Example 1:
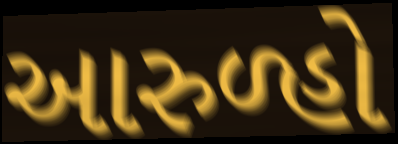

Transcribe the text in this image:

આરુળ્હો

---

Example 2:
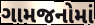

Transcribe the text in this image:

ગામજનોમાં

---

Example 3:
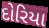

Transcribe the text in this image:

દોરિયા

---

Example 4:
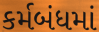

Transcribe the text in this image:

કર્મબંધમાં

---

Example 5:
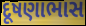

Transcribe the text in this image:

દૂષણાભાસ